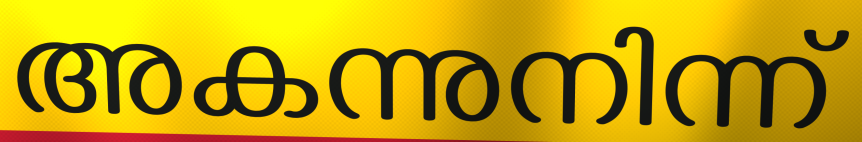
അകന്നുനിന്ന്